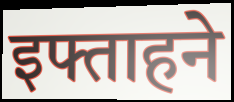
इफ्ताहने